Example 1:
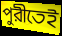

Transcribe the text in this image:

পুরীতেই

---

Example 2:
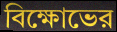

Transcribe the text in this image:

বিক্ষোভের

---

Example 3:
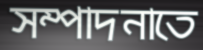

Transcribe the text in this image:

সম্পাদনাতে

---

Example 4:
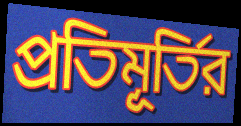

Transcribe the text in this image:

প্রতিমূর্তির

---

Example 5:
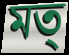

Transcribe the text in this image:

মত্